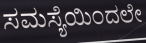
ಸಮಸ್ಯೆಯಿಂದಲೇ